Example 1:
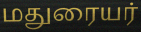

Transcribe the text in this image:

மதுரையர்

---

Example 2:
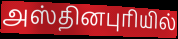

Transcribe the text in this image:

அஸ்தினபுரியில்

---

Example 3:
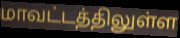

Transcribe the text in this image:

மாவட்டத்திலுள்ள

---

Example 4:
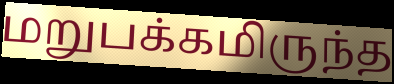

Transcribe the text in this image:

மறுபக்கமிருந்த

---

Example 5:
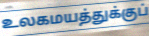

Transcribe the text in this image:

உலகமயத்துக்குப்